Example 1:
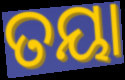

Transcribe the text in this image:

ତୟା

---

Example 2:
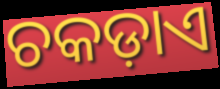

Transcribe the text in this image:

ଚକଡ଼ାଏ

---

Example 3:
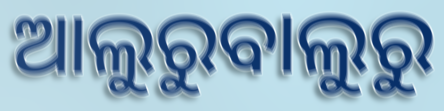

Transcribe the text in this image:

ଆଲୁରୁବାଲୁରୁ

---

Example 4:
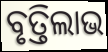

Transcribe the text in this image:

ବୃତ୍ତିଲାଭ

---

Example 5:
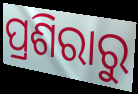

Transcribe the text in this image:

ପ୍ରଶିରାରୁ